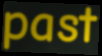
past